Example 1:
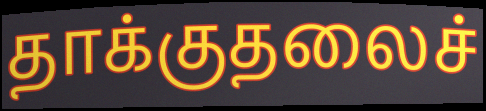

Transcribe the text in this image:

தாக்குதலைச்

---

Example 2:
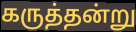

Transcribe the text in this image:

கருத்தன்று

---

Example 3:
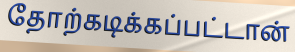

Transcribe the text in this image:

தோற்கடிக்கப்பட்டான்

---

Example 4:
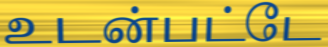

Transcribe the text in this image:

உடன்பட்டே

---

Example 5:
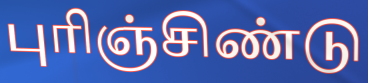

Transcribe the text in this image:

புரிஞ்சிண்டு